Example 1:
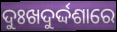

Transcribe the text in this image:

ଦୁଃଖଦୁର୍ଦ୍ଦଶାରେ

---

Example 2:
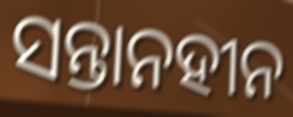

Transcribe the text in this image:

ସନ୍ତାନହୀନ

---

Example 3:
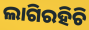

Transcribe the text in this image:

ଲାଗିରହିଚି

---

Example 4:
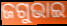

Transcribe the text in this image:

ଜଗୁଭାଇ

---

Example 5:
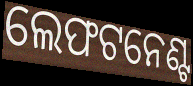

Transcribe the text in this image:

ଲେଫଟନେଣ୍ଟ